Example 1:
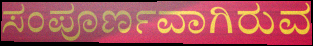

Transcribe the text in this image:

ಸಂಪೂರ್ಣವಾಗಿರುವ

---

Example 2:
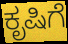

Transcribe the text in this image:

ಕೃಷಿಗೆ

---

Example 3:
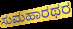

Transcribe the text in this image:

ಸುಮಹಾರಥರ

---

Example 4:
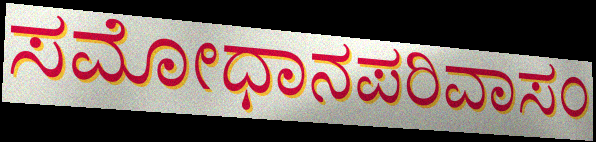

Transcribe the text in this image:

ಸಮೋಧಾನಪರಿವಾಸಂ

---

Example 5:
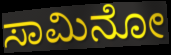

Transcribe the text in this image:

ಸಾಮಿನೋ